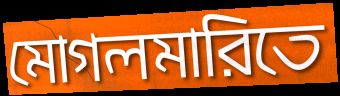
মোগলমারিতে